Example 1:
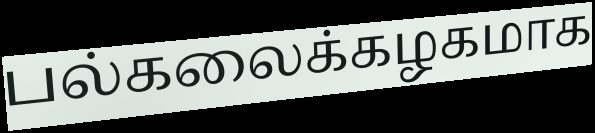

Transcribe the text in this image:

பல்கலைக்கழகமாக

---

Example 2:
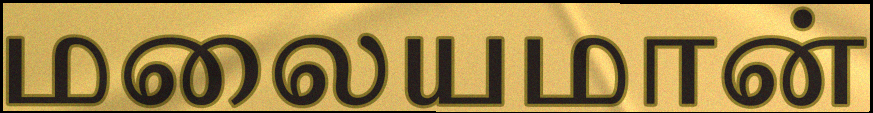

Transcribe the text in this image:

மலையமான்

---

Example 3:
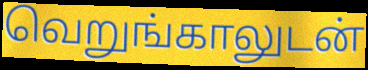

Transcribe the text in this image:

வெறுங்காலுடன்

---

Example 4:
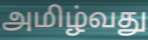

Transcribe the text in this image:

அமிழ்வது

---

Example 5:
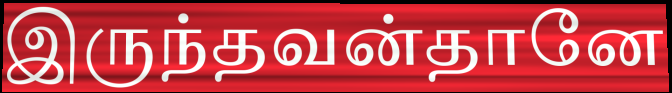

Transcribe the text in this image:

இருந்தவன்தானே